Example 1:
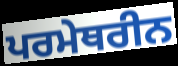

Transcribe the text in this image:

ਪਰਮੇਥਰੀਨ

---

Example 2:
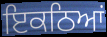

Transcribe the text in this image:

ਇਕਠਿਆਂ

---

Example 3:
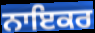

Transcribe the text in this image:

ਨਾਇਕਰ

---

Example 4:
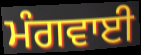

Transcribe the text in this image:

ਮੰਗਵਾਈ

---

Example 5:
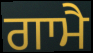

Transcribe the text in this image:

ਗਾਮੈ